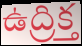
ఉద్రిక్త